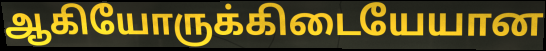
ஆகியோருக்கிடையேயான